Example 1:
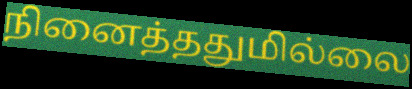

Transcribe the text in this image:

நினைத்ததுமில்லை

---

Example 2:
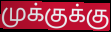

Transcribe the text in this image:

முக்குக்கு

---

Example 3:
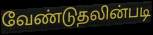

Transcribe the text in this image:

வேண்டுதலின்படி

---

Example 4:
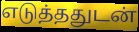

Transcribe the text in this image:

எடுத்ததுடன்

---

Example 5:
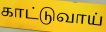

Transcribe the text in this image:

காட்டுவாய்